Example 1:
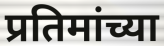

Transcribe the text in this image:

प्रतिमांच्या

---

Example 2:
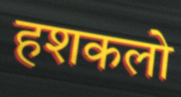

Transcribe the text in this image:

हशकलो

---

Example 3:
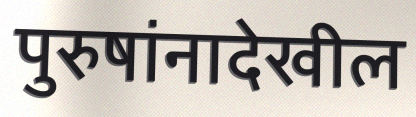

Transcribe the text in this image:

पुरुषांनादेखील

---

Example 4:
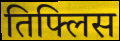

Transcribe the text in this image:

तिफ्लिस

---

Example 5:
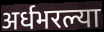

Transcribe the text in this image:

अर्धभरल्या